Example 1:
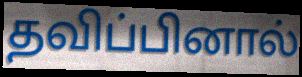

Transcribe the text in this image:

தவிப்பினால்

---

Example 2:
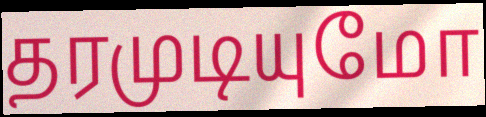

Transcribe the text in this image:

தரமுடியுமோ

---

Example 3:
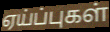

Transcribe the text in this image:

ஏய்ப்புகள்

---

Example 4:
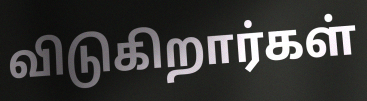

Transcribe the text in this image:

விடுகிறார்கள்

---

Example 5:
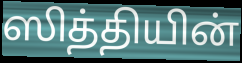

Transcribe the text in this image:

ஸித்தியின்